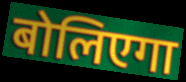
बोलिएगा